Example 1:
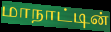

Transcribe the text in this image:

மாநாட்டின்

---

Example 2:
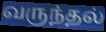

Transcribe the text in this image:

வருந்தல்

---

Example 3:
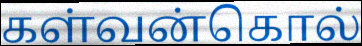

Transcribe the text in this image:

கள்வன்கொல்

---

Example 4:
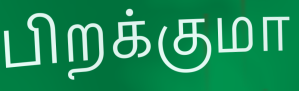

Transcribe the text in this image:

பிறக்குமா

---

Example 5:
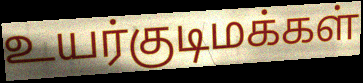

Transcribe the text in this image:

உயர்குடிமக்கள்